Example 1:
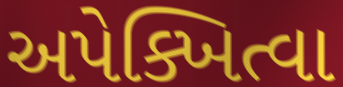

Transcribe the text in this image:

અપેક્ખિત્વા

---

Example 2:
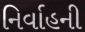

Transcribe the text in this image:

નિર્વાહની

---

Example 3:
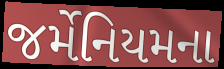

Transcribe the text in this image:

જર્મેનિયમના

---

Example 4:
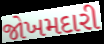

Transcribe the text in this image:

જોખમદારી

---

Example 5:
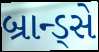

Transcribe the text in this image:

બ્રાન્ડ્સે